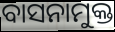
ବାସନାମୁକ୍ତ